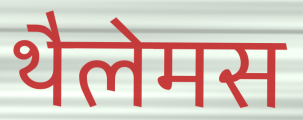
थैलेमस